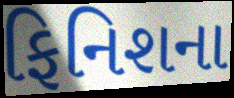
ફિનિશના